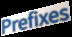
Prefixes